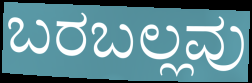
ಬರಬಲ್ಲವು